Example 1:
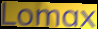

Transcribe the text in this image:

Lomax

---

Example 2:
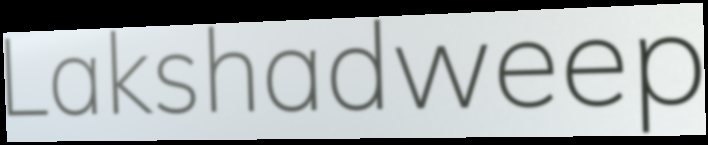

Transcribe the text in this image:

Lakshadweep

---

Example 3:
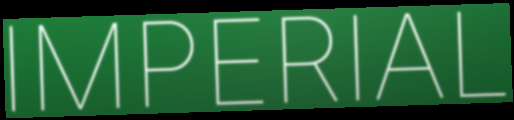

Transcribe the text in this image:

IMPERIAL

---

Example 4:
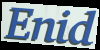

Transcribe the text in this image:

Enid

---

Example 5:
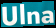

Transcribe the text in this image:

Ulna